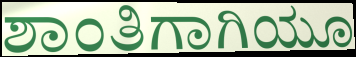
ಶಾಂತಿಗಾಗಿಯೂ